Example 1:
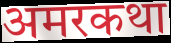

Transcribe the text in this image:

अमरकथा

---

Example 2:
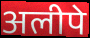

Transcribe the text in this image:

अलीपे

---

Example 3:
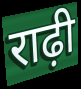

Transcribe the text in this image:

राढ़ी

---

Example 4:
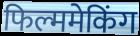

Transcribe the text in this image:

फिल्‍ममेकिंग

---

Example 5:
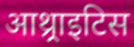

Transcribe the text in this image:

आथ्र्राइटिस